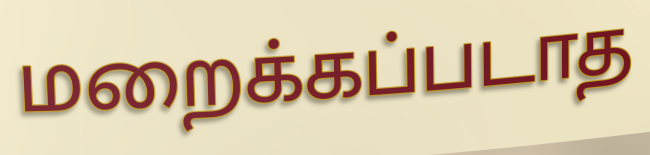
மறைக்கப்படாத